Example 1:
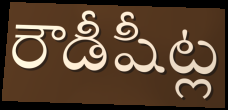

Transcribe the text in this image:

రౌడీషీట్ల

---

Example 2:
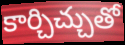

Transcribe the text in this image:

కార్చిచ్చుతో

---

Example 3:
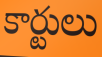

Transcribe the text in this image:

కార్టులు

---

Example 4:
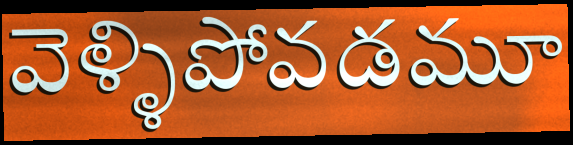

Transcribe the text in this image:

వెళ్ళిపోవడమూ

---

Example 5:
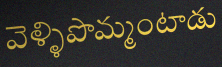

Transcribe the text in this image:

వెళ్ళిపొమ్మంటాడు